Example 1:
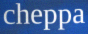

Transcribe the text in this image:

cheppa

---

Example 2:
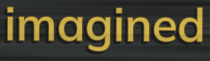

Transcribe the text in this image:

imagined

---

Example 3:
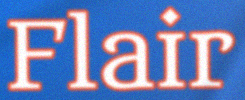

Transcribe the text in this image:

Flair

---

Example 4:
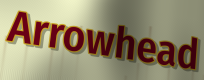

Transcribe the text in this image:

Arrowhead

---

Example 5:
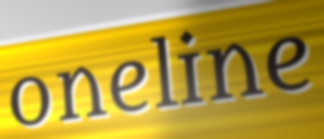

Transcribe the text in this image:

oneline